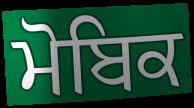
ਮੋਬਿਕ